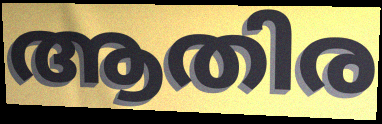
ആതിര